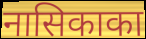
नासिकाका